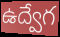
ఉద్వేగ